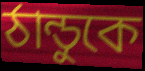
ঠান্ডুকে